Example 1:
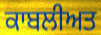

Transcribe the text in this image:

ਕਾਬਲੀਅਤ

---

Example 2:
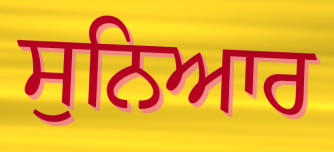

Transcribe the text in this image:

ਸੁਨਿਆਰ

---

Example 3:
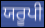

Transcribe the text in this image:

ਯਰੂਪੀ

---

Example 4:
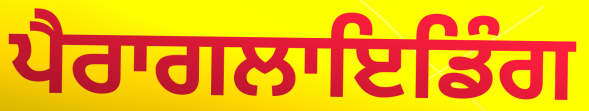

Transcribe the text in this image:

ਪੈਰਾਗਲਾਇਡਿੰਗ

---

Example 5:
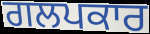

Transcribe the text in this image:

ਗਲਪਕਾਰ